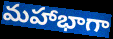
మహాభాగా